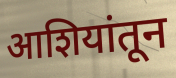
आशियांतून